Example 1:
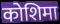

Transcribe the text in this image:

कोशिमा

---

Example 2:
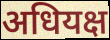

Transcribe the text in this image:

अधियक्ष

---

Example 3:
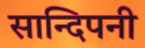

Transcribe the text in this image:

सान्दिपनी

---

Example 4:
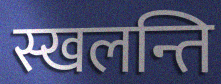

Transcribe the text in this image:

स्खलन्ति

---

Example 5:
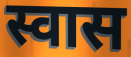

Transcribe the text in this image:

स्वास